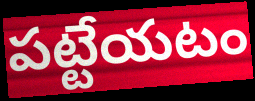
పట్టేయటం